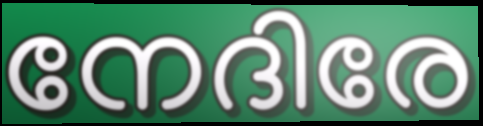
നേദിരേ